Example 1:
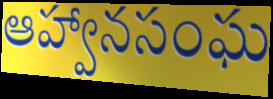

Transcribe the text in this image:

ఆహ్వానసంఘ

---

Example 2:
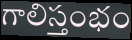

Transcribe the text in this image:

గాలిస్తంభం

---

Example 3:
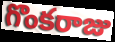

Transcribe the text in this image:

గొంకరాజు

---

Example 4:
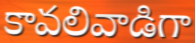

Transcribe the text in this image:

కావలివాడిగా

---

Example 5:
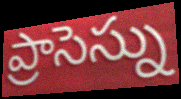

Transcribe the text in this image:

ప్రాసెస్ను